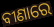
ବୀଣାରେ